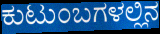
ಕುಟುಂಬಗಳಲ್ಲಿನ